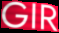
GIR